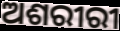
ଅଶରୀରୀ